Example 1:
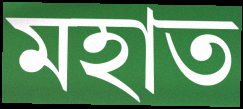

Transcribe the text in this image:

মহাত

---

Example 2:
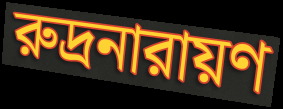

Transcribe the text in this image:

রুদ্রনারায়ণ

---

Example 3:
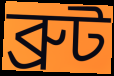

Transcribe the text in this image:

ব্রুট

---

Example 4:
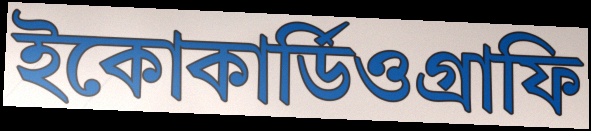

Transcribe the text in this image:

ইকোকার্ডিওগ্রাফি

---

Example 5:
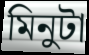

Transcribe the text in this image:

মিনুটা